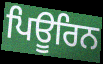
ਪਿਊਰਿਨ